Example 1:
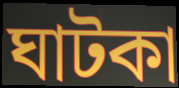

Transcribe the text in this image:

ঘাটকা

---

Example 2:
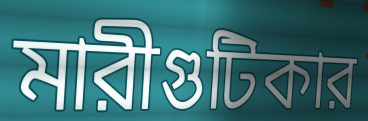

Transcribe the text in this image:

মারীগুটিকার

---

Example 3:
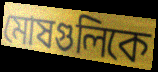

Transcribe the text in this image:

মোষগুলিকে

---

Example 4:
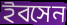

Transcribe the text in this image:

ইবসেন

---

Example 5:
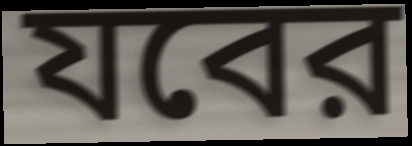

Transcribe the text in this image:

যবের